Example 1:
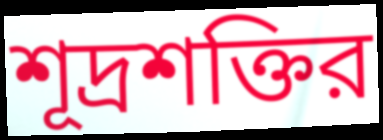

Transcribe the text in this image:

শূদ্রশক্তির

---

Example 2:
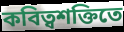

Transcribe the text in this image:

কবিত্বশক্তিতে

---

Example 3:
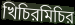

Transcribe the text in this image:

খিচিরমিচির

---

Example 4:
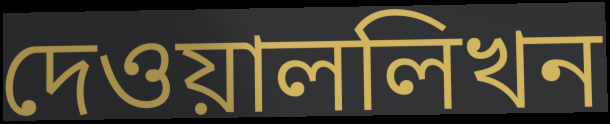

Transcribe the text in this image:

দেওয়াললিখন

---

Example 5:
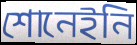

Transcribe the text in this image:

শোনেইনি